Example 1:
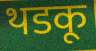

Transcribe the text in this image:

थडकू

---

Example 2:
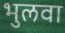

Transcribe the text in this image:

भुलवा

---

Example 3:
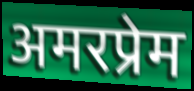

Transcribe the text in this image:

अमरप्रेम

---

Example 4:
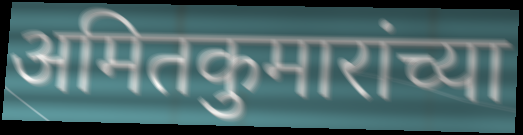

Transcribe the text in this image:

अमितकुमारांच्या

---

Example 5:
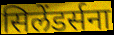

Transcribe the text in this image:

सिलेंडर्सना